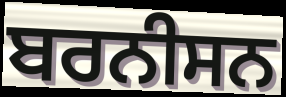
ਬਰਨੀਸਨ